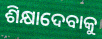
ଶିକ୍ଷାଦେବାକୁ